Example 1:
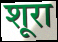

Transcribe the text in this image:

शूरा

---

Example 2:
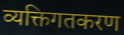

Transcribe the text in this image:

व्यक्तिगतकरण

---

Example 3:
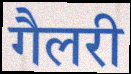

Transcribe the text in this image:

गैलरी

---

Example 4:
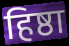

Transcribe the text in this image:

हिष्ठा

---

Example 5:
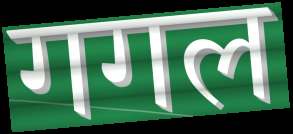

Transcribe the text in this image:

गगल